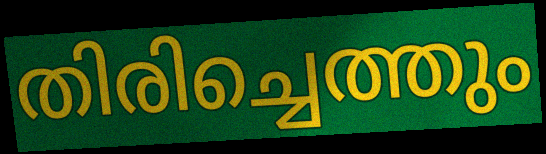
തിരിച്ചെത്തും